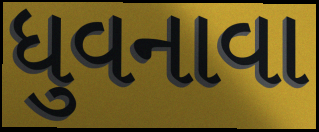
ધુવનાવા